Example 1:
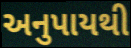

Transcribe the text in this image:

અનુપાયથી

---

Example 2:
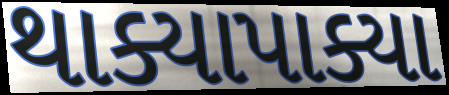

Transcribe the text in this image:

થાક્યાપાક્યા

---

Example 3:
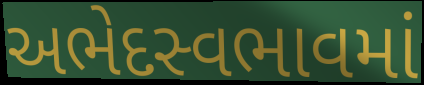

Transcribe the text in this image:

અભેદસ્વભાવમાં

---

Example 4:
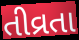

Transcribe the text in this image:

તીવ્રતા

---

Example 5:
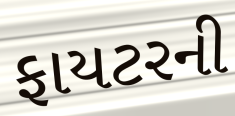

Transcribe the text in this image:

ફાયટરની